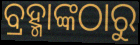
ବ୍ରହ୍ମାଙ୍କଠାରୁ